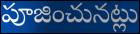
పూజించునట్లు